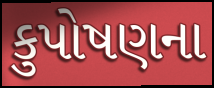
કુપોષણના